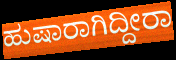
ಹುಷಾರಾಗಿದ್ದೀರಾ